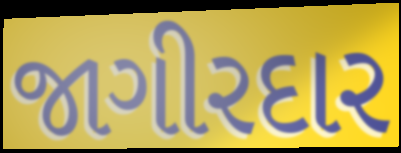
જાગીરદાર